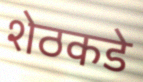
शेठकडे